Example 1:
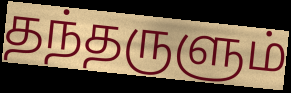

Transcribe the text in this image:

தந்தருளும்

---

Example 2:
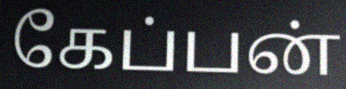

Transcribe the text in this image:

கேப்பன்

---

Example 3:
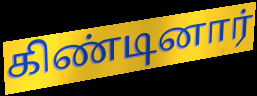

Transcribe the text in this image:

கிண்டினார்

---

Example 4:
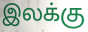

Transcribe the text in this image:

இலக்கு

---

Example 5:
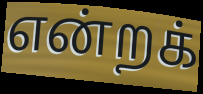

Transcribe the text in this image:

என்றக்